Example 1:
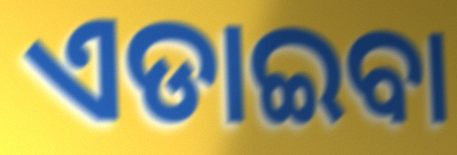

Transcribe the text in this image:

ଏଡାଇବା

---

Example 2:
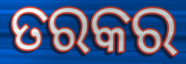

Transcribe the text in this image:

ତରକର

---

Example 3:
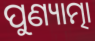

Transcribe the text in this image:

ପୁଣ୍ୟାତ୍ମା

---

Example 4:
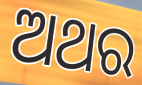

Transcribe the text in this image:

ଅଥର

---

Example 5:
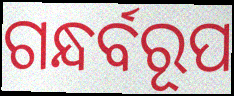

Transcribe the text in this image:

ଗନ୍ଧର୍ବରୂପ